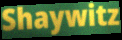
Shaywitz